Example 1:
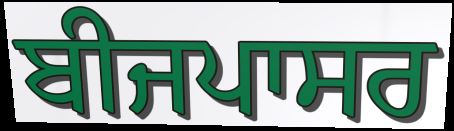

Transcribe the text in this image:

ਬੀਜਪਾਸਰ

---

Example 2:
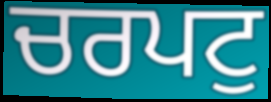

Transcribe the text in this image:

ਚਰਪਟੁ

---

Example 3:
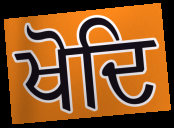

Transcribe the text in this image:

ਖੋਦਿ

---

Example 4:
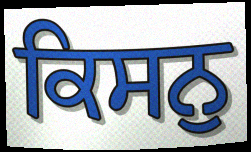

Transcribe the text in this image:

ਕਿਸਨੁ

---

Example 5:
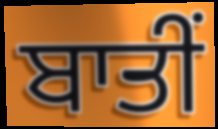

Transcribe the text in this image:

ਬਾਤੀਂ